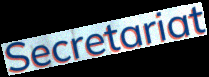
Secretariat